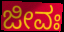
ಜೀವಃ